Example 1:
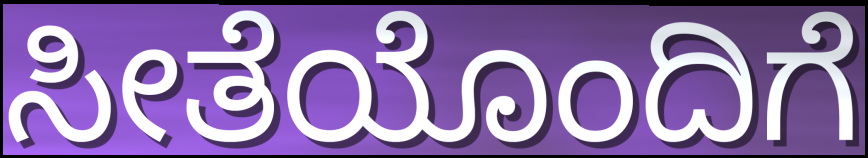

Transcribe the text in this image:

ಸೀತೆಯೊಂದಿಗೆ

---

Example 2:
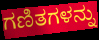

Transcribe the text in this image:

ಗಣಿತಗಳನ್ನು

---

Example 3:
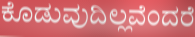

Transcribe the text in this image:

ಕೊಡುವುದಿಲ್ಲವೆಂದರೆ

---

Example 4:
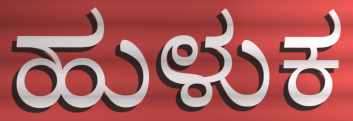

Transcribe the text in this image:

ಹುಳುಕ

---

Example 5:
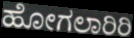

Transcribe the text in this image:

ಹೋಗಲಾರಿರಿ